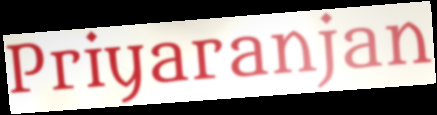
Priyaranjan